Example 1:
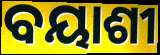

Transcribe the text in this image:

ବୟାଶୀ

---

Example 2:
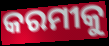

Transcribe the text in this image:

କରମୀକୁ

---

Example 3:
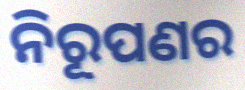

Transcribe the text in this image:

ନିରୂପଣର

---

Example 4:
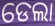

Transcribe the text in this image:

ଡେଲା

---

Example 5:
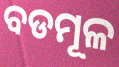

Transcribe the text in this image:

ବଡମୂଳ